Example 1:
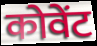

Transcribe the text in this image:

कोवेंट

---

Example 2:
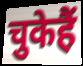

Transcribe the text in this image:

चुकेहैं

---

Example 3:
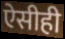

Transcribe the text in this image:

ऐसीही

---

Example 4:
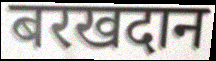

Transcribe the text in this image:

बरखदान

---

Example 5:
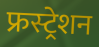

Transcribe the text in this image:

फ्रस्‍ट्रेशन